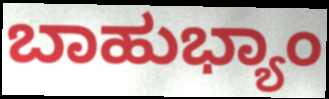
ಬಾಹುಭ್ಯಾಂ